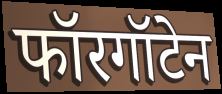
फॉरगॉटेन